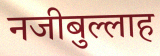
नजीबुल्लाह